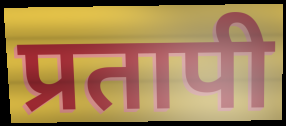
प्रतापी